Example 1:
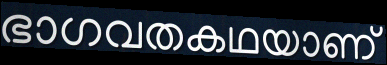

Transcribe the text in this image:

ഭാഗവതകഥയാണ്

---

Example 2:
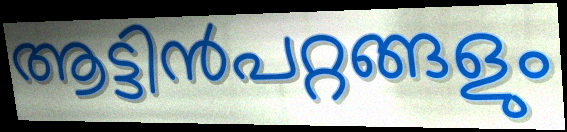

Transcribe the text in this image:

ആട്ടിൻപറ്റങ്ങളും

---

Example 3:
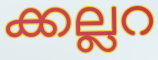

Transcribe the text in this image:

ക്കല്ലറ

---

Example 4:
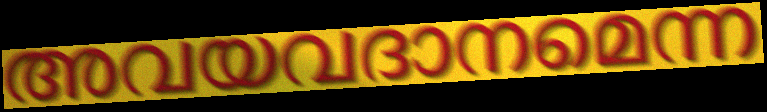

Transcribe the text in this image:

അവയവദാനമെന്ന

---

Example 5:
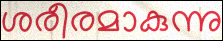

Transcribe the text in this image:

ശരീരമാകുന്നു